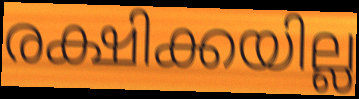
രക്ഷിക്കയില്ല